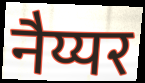
नैय्यर